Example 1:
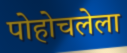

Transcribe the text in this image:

पोहोचलेला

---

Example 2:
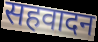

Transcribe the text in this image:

सहवादन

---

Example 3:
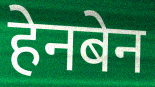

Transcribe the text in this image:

हेनबेन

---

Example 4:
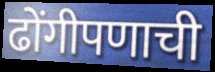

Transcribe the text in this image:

ढोंगीपणाची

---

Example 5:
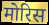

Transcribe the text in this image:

मोरिस